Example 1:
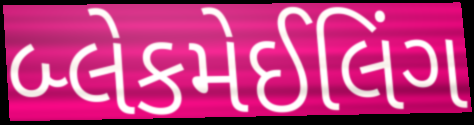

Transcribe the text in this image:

બ્લેકમેઈલિંગ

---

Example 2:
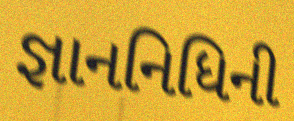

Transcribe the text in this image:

જ્ઞાનનિધિની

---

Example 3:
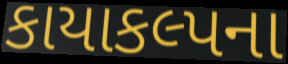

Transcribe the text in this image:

કાયાકલ્પના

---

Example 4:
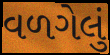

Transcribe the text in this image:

વળગેલું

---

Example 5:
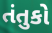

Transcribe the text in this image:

તંતુકો